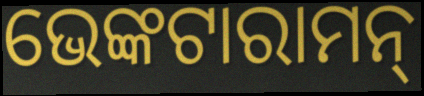
ଭେଙ୍କଟାରାମନ୍